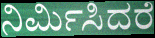
ನಿರ್ಮಿಸಿದರೆ